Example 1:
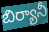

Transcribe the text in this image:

బిర్యానీ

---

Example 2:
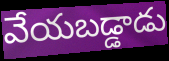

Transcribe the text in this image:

వేయబడ్డాడు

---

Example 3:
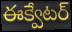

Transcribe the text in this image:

ఈక్వేటర్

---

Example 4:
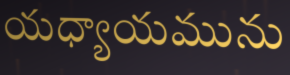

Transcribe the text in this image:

యధ్యాయమును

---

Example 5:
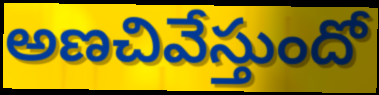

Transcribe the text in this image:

అణచివేస్తుందో